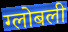
ग्लोबली